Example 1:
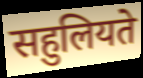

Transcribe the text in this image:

सहुलियते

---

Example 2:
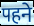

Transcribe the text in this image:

पहने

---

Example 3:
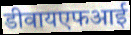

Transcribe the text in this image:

डीवायएफआई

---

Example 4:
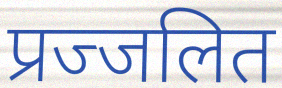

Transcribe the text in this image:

प्रज्जलित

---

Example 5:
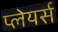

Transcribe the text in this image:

प्‍लेयर्स